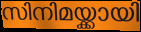
സിനിമയ്ക്കായി